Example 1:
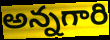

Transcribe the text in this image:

అన్నగారి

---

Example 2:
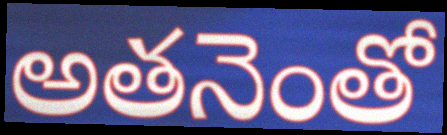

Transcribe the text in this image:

అతనెంతో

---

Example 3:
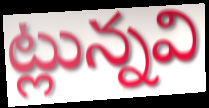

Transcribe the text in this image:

ట్లున్నవి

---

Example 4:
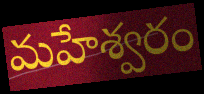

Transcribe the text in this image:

మహేశ్వరం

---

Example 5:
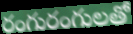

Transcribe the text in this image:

రంగురంగులతో